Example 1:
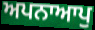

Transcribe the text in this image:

ਅਪਨਾਆਪੁ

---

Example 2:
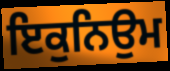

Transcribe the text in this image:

ਇਕੁਨਿਉਮ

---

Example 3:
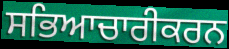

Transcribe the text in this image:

ਸਭਿਆਚਾਰੀਕਰਨ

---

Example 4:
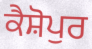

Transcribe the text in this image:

ਕੈਸ਼ੋਪੁਰ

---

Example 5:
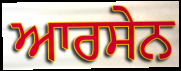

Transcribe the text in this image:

ਆਰਸੇਨ